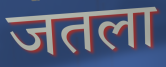
जतला